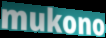
mukono